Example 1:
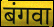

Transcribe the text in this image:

बंगवा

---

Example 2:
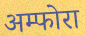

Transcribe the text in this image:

अम्फोरा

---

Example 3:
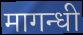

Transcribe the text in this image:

मागन्धी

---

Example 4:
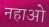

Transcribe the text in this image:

नहाओ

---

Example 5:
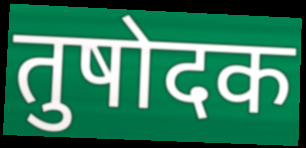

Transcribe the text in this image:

तुषोदक